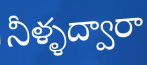
నీళ్ళద్వారా